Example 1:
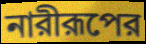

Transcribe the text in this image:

নারীরূপের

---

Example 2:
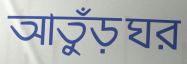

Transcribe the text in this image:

আতুঁড়ঘর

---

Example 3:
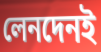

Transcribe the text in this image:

লেনদেনই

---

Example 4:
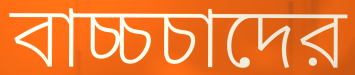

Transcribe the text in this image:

বাচ্চচাদের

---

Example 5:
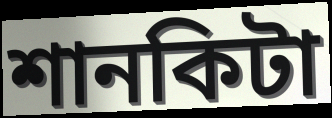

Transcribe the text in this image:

শানকিটা